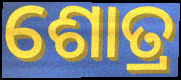
ଶୋତ୍ର